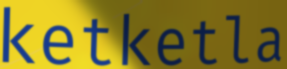
ketketla